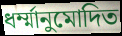
ধর্ম্মানুমোদিত